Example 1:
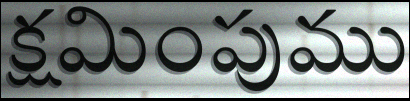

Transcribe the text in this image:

క్షమింపుము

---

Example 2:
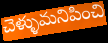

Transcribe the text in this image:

చెళ్ళుమనిపించి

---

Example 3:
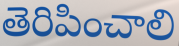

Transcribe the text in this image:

తెరిపించాలి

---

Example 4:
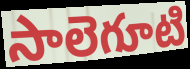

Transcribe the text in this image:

సాలెగూటి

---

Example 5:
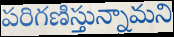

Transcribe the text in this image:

పరిగణిస్తున్నామని